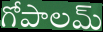
గోపాలమ్